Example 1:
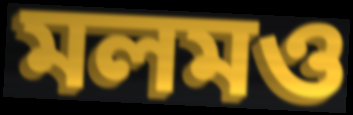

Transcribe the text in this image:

মলমও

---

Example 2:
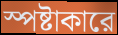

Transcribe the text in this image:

স্পষ্টাকারে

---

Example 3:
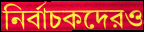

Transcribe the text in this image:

নির্বাচকদেরও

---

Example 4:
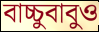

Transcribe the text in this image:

বাচ্চুবাবুও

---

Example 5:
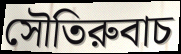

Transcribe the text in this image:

সৌতিরুবাচ